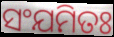
ସଂଯମିତଃ